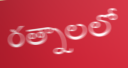
రత్నాలలో